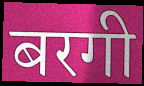
बरगी